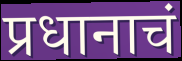
प्रधानाचं